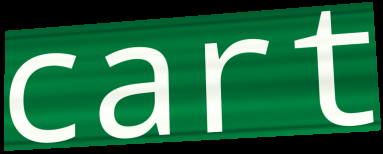
cart